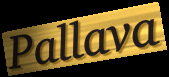
Pallava